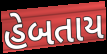
હેબતાય